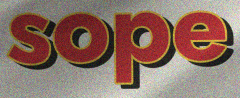
sope